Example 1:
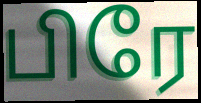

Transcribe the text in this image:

பிரே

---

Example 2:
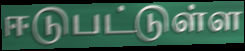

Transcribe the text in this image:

ஈடுபட்டுள்ள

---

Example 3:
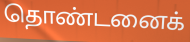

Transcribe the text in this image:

தொண்டனைக்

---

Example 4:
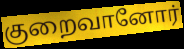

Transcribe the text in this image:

குறைவானோர்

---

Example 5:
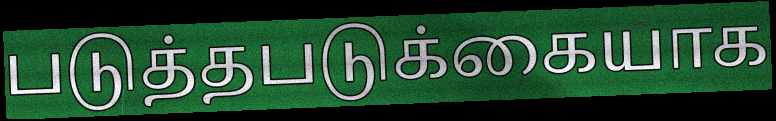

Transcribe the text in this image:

படுத்தபடுக்கையாக